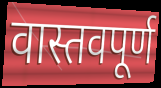
वास्तवपूर्ण